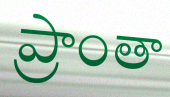
ప్రాంతా